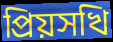
প্রিয়সখি